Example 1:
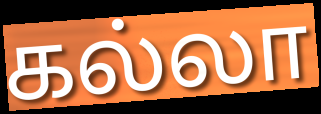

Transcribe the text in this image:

கல்லா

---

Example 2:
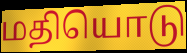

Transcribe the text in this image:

மதியொடு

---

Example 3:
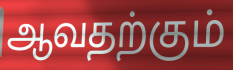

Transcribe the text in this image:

ஆவதற்கும்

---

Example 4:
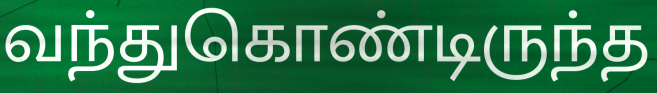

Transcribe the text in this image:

வந்துகொண்டிருந்த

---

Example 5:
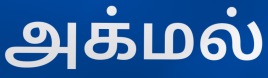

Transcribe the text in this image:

அக்மல்